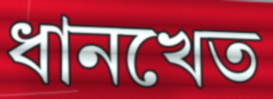
ধানখেত